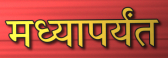
मध्यापर्यंत